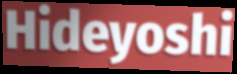
Hideyoshi